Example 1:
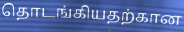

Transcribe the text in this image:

தொடங்கியதற்கான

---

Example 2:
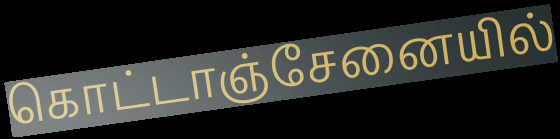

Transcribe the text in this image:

கொட்டாஞ்சேனையில்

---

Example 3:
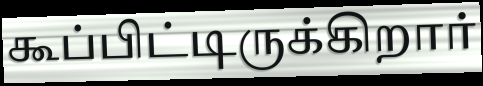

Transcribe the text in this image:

கூப்பிட்டிருக்கிறார்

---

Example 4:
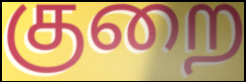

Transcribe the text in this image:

குறை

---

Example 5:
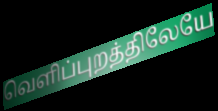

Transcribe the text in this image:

வெளிப்புறத்திலேயே